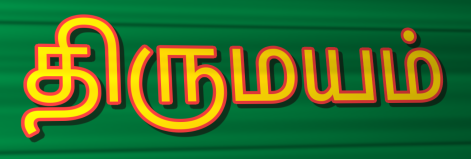
திருமயம்